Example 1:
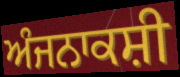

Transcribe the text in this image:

ਅੰਜਨਾਕਸ਼ੀ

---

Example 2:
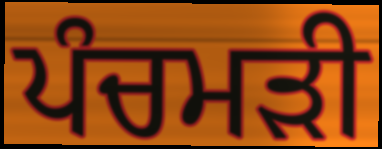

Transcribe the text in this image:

ਪੰਚਮੜੀ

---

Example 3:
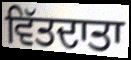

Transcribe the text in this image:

ਵਿੱਤਦਾਤਾ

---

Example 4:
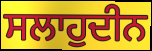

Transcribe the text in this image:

ਸਲਾਹੁਦੀਨ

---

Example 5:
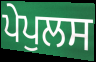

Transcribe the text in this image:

ਪੇਪੁਲਸ